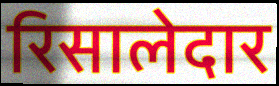
रिसालेदार